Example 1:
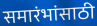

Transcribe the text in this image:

समारंभांसाठी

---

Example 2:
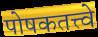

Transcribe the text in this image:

पोषकतत्त्वे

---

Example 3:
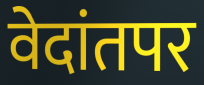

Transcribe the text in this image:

वेदांतपर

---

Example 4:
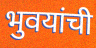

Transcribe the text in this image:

भुवयांची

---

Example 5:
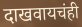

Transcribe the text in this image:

दाखवायचंही